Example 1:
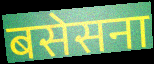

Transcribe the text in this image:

बसेसना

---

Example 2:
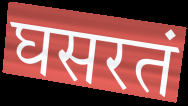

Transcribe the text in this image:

घसरतं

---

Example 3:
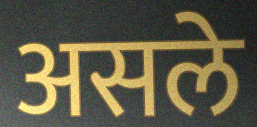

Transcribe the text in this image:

असले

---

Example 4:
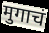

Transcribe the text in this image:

मुगाचं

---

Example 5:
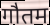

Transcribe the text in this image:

गौतम